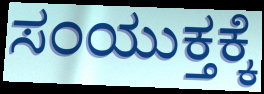
ಸಂಯುಕ್ತಕ್ಕೆ